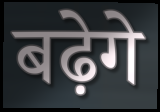
बढ़ेगे